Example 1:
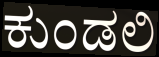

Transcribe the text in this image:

ಕುಂಡಲಿ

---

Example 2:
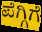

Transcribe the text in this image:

ಪೆಗ್ಗಿಗೆ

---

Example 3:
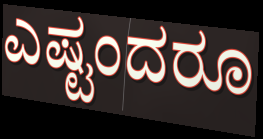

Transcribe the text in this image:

ಎಷ್ಟಂದರೂ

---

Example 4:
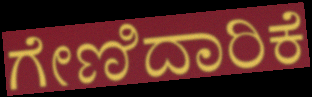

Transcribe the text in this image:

ಗೇಣಿದಾರಿಕೆ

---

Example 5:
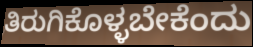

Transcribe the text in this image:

ತಿರುಗಿಕೊಳ್ಳಬೇಕೆಂದು